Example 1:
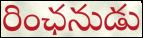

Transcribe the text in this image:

రింఛనుడు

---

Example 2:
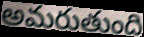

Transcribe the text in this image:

అమరుతుంది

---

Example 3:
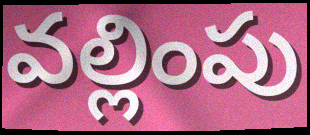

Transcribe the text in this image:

వల్లింపు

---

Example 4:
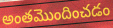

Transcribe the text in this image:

అంతమొందించడం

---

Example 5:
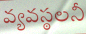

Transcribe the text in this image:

వ్యవస్ఠలనీ